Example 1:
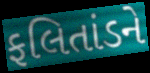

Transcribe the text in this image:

ફલિતાંડને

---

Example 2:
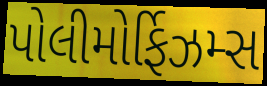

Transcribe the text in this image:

પોલીમોર્ફિઝમ્સ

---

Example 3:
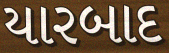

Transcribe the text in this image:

યારબાદ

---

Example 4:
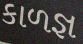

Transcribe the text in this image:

કાળજ્ઞ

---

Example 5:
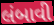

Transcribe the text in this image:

લંબાવી